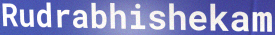
Rudrabhishekam